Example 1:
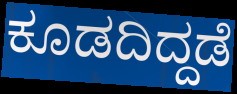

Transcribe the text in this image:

ಕೂಡದಿದ್ದಡೆ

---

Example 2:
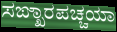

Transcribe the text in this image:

ಸಙ್ಖಾರಪಚ್ಚಯಾ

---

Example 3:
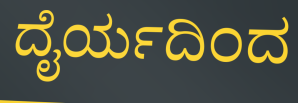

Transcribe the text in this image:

ದೈರ್ಯದಿಂದ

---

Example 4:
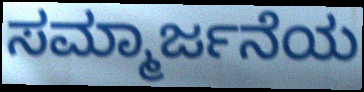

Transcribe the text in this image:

ಸಮ್ಮಾರ್ಜನೆಯ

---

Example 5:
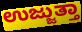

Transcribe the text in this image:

ಉಜ್ಜುತ್ತಾ